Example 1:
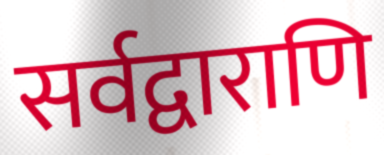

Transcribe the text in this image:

सर्वद्वाराणि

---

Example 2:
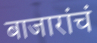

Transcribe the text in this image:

बाजारांचं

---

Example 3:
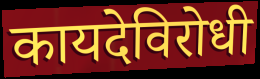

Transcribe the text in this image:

कायदेविरोधी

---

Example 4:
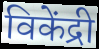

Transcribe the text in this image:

विकेंद्री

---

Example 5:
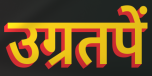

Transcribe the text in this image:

उग्रतपें